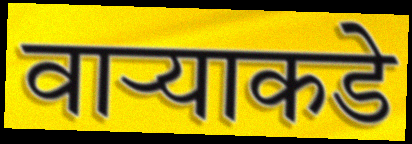
वाऱ्याकडे